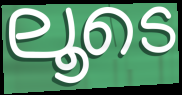
ലൂടെ